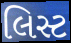
લિસ્ટ